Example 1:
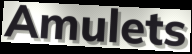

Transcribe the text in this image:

Amulets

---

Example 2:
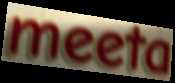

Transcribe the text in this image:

meeta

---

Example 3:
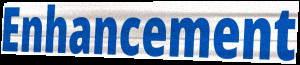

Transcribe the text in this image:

Enhancement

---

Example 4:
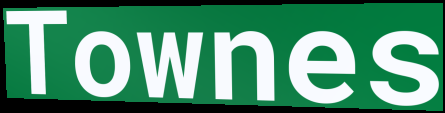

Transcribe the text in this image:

Townes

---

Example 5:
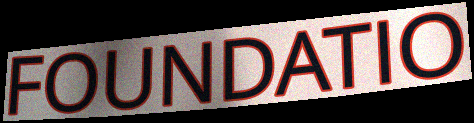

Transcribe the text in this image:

FOUNDATIO